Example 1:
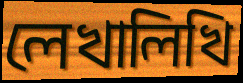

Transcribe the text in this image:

লেখালিখি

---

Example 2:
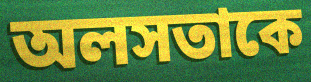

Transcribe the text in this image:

অলসতাকে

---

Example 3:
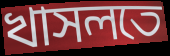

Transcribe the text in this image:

খাসলতে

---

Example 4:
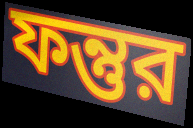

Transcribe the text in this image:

ফন্তুর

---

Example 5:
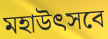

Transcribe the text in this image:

মহাউৎসবে